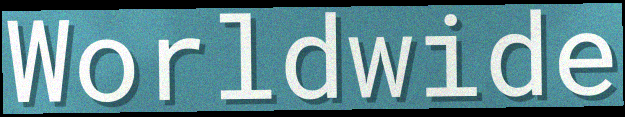
Worldwide